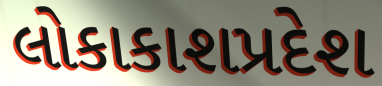
લોકાકાશપ્રદેશ